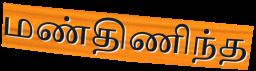
மண்திணிந்த